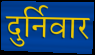
दुर्निवार